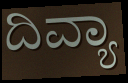
ದಿವ್ಯಾ